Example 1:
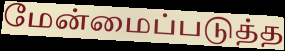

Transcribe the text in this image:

மேன்மைப்படுத்த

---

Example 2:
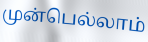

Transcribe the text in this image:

முன்பெல்லாம்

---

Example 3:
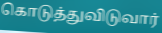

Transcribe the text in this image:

கொடுத்துவிடுவார்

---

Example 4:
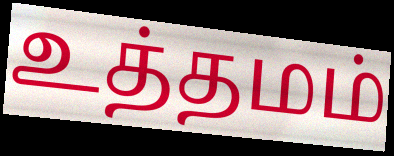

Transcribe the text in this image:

உத்தமம்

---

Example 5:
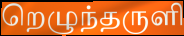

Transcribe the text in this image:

றெழுந்தருளி